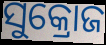
ସୁକ୍ରୋଜ